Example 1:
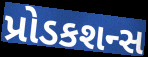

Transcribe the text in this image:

પ્રોડકશન્સ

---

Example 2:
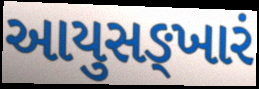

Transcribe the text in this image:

આયુસઙ્ખારં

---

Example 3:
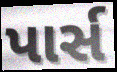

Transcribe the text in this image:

પાર્સ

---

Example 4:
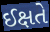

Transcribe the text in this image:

ઈક્ષતે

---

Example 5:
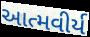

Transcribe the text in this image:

આત્મવીર્ય